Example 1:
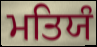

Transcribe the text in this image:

ਮਤਿਯੰ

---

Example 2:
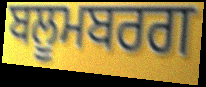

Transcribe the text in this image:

ਬਲੂਮਬਰਗ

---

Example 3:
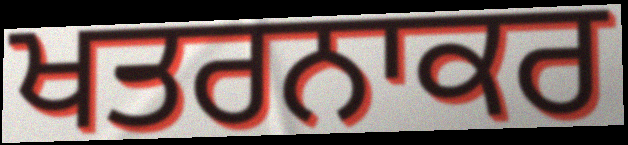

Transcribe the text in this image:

ਖਤਰਨਾਕਰ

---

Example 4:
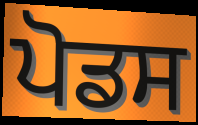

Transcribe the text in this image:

ਪੋਡਸ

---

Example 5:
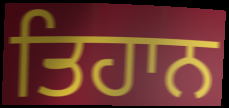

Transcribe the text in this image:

ਤਿਹਾਨ